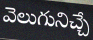
వెలుగునిచ్చే